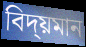
বিদ্য়মান